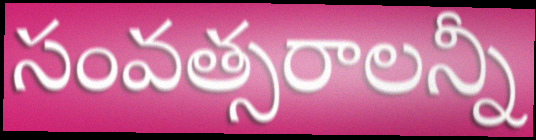
సంవత్సరాలన్నీ